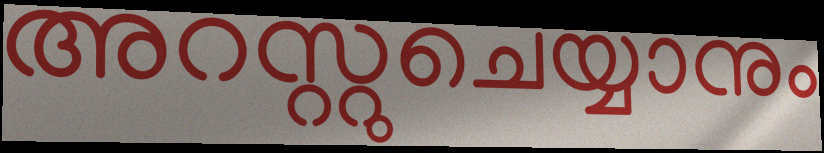
അറസ്റ്റുചെയ്യാനും